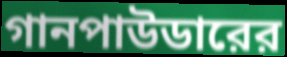
গানপাউডারের